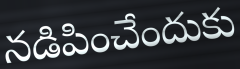
నడిపించేందుకు